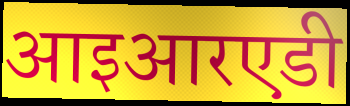
आइआरएडी